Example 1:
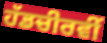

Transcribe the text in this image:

ਹੱਡਚੀਰਵੀਂ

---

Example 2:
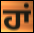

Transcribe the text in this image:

ਹਾਂ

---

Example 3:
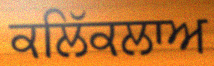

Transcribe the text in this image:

ਕਲਿੱਕਲਾਅ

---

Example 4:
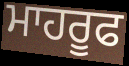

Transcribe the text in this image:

ਮਾਹਰੂਫ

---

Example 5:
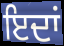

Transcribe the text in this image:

ਇਦਾਂ